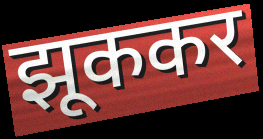
झूककर